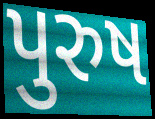
પુરુષ